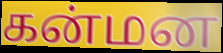
கன்மன